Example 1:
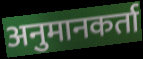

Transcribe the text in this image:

अनुमानकर्ता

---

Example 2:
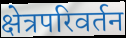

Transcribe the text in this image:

क्षेत्रपरिवर्तन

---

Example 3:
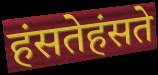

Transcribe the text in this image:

हंसतेहंसते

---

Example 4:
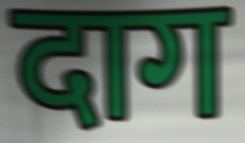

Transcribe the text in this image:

दाग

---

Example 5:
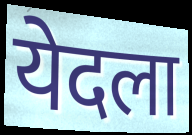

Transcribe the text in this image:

येदला